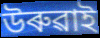
উৰুৱাই